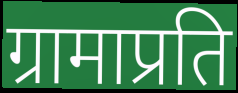
ग्रामाप्रति